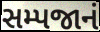
સમ્પજાનં